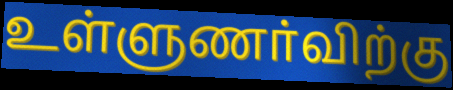
உள்ளுணர்விற்கு